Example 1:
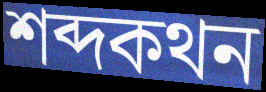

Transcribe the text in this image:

শব্দকথন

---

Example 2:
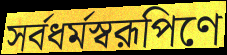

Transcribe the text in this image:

সর্বধর্মস্বরূপিণে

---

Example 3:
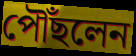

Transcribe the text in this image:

পৌঁছলেন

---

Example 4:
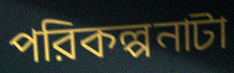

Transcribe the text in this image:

পরিকল্পনাটা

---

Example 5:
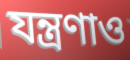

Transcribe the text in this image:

যন্ত্রণাও